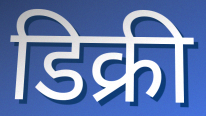
डिक्री